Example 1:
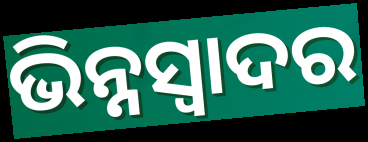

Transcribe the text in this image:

ଭିନ୍ନସ୍ବାଦର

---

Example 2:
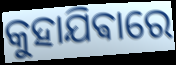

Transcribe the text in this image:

କୁହାଯିଵାରେ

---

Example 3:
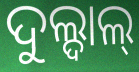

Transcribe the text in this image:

ଦୁଲ୍ଦାଲ୍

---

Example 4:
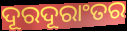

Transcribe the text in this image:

ଦୂରଦୂରାଂତର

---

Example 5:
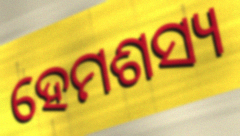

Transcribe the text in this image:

ହେମଶସ୍ୟ